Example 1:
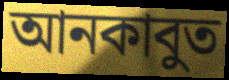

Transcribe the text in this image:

আনকাবুত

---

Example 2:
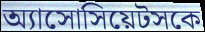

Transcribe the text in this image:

অ্যাসোসিয়েটসকে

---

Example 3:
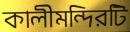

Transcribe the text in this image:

কালীমন্দিরটি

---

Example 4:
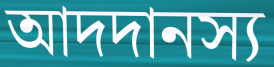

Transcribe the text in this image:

আদদানস্য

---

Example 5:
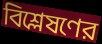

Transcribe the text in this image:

বিশ্লেষণের